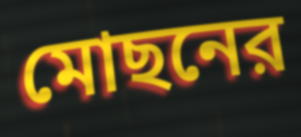
মোছনের